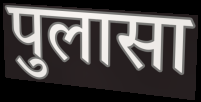
पुलासा